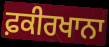
ਫ਼ਕੀਰਖਾਨਾ